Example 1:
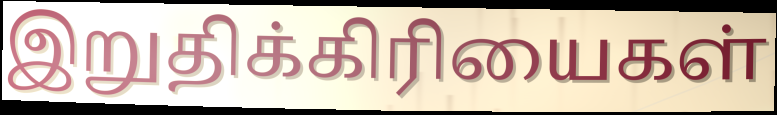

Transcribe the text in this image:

இறுதிக்கிரியைகள்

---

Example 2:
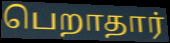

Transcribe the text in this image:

பெறாதார்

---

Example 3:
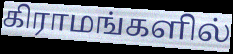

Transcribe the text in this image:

கிராமங்களில்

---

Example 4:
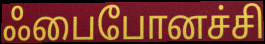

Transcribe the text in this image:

ஃபைபோனச்சி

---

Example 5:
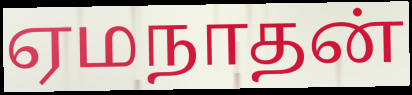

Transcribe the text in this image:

ஏமநாதன்